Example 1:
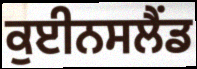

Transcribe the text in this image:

ਕੁਈਨਸਲੈਂਡ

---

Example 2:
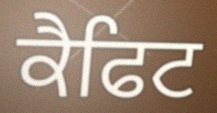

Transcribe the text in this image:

ਕੈਫਿਟ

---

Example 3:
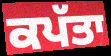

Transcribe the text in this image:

ਕਪੱਤਾ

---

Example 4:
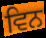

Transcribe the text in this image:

ਵਿਨ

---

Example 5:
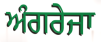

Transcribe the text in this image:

ਅੰਗਰੇਜਾ